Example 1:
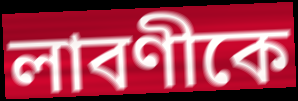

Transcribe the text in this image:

লাবণীকে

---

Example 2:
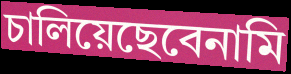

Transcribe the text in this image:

চালিয়েছেবেনামি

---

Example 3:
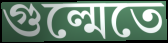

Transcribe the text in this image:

গুল্মেতে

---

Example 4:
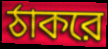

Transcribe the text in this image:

ঠাকরে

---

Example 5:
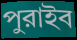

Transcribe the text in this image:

পুরাইব